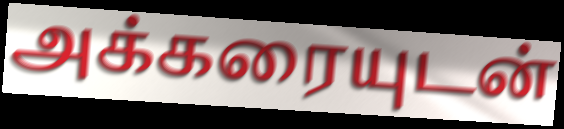
அக்கரையுடன்